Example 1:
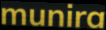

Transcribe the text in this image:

munira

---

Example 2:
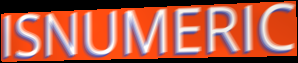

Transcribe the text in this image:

ISNUMERIC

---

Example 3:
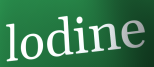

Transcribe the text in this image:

lodine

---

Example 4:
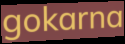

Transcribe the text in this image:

gokarna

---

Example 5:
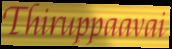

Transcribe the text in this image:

Thiruppaavai